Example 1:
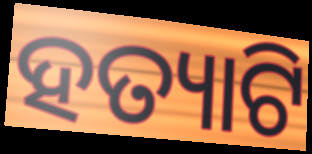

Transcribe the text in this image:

ହତ୍ୟାଟି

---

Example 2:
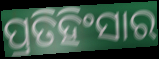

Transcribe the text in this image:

ପ୍ରତିହିଂସାର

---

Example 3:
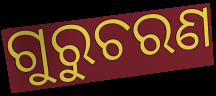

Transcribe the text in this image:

ଗୁରୁଚରଣ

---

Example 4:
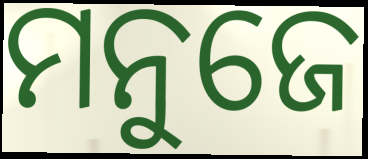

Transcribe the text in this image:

ମନୁଜେ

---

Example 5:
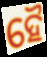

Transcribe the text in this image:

ହୈ